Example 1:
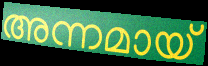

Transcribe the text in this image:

അന്നമായ്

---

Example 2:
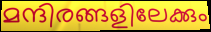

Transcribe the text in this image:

മന്ദിരങ്ങളിലേക്കും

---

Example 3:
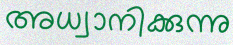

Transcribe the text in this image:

അധ്വാനിക്കുന്നു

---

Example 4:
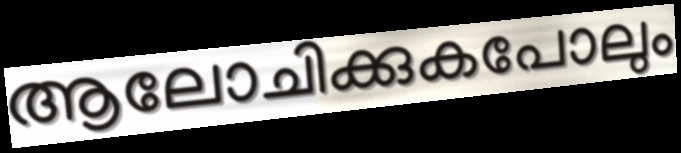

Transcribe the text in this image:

ആലോചിക്കുകപോലും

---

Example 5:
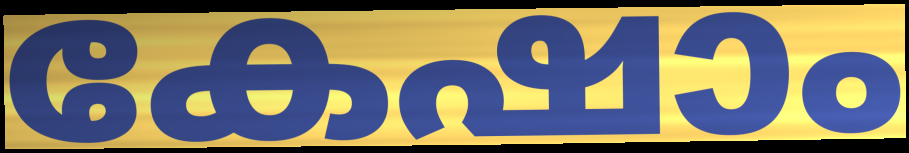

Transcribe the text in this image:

കേഷാം